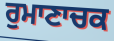
ਰੁਮਾਣਾਚਕ